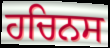
ਹਚਿਨਸ